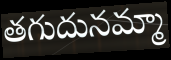
తగుదునమ్మా